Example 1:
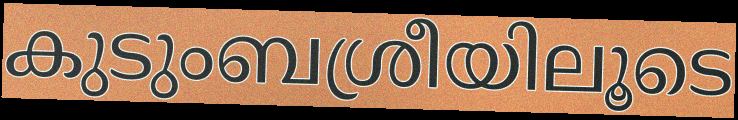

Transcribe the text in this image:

കുടുംബശ്രീയിലൂടെ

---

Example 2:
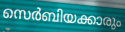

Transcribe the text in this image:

സെർബിയക്കാരും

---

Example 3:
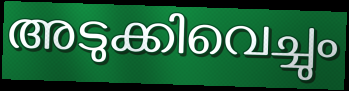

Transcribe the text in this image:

അടുക്കിവെച്ചും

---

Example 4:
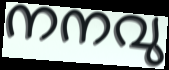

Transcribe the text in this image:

നനവു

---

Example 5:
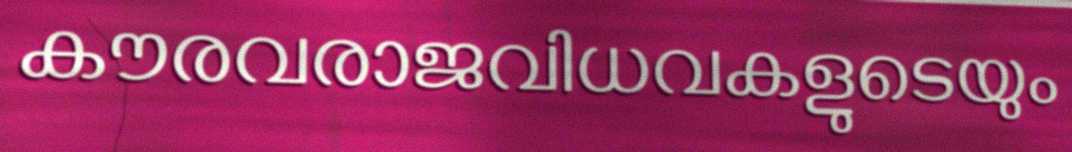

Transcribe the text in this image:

കൗരവരാജവിധവകളുടെയും